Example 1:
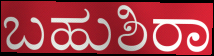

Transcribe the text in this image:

ಬಹುಶಿರಾ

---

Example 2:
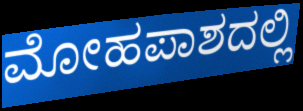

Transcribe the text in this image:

ಮೋಹಪಾಶದಲ್ಲಿ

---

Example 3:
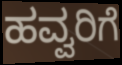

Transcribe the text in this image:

ಹವ್ವರಿಗೆ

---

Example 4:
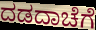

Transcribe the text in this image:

ದಡದಾಚೆಗೆ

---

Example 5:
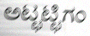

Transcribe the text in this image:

ಅಟ್ಟಟ್ಟಿಗಂ